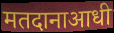
मतदानाआधी